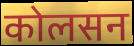
कोलसन